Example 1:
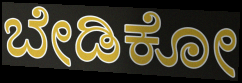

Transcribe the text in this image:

ಬೇಡಿಕೋ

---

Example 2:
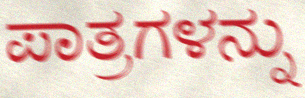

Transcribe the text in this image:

ಪಾತ್ರಗಳನ್ನು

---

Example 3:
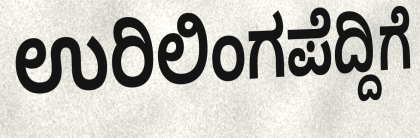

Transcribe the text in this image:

ಉರಿಲಿಂಗಪೆದ್ದಿಗೆ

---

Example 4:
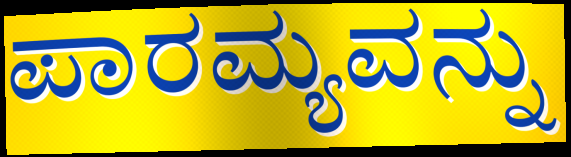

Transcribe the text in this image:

ಪಾರಮ್ಯವನ್ನು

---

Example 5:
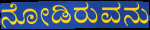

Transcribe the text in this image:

ನೋಡಿರುವನು